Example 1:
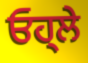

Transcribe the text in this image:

ਓਹ੍ਲੇ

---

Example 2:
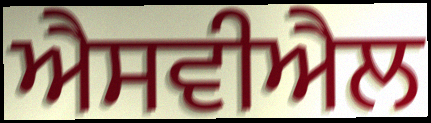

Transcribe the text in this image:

ਐਸਵੀਐਲ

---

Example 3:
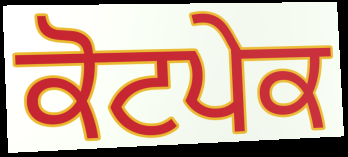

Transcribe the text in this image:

ਕੋਟਪੇਕ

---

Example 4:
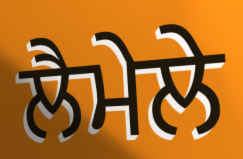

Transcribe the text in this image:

ਲੈਮੇਲੇ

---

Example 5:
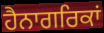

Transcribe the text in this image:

ਹੈਨਾਗਰਿਕਾਂ